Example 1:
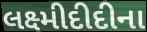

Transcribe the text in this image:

લક્ષ્મીદીદીના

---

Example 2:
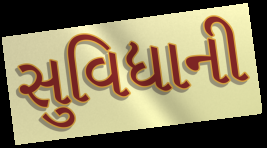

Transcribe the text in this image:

સુવિદ્યાની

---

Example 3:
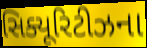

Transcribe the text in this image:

સિક્યૂરિટીઝના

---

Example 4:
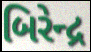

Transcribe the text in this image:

બિરેન્દ્ર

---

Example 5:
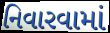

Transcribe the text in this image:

નિવારવામાં